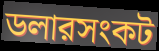
ডলারসংকট